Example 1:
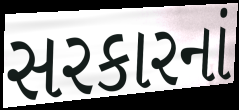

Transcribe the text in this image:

સરકારનાં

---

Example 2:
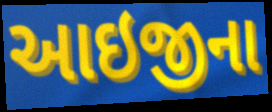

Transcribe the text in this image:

આઇજીના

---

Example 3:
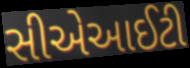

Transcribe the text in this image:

સીએઆઈટી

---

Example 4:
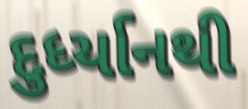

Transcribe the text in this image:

દુર્ધ્યાનથી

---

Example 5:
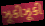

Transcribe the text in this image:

ઝૂકીઝૂકી